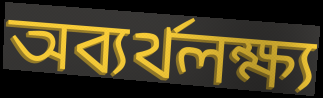
অব্যর্থলক্ষ্য